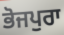
ਭੋਜਪੁਰਾ